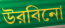
উরবিনো